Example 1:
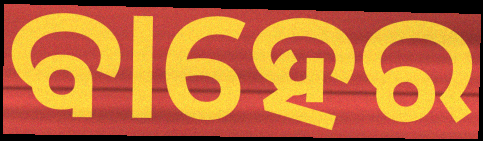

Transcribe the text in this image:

ବାହେର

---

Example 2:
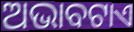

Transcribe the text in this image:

ଅଭାବଟାଏ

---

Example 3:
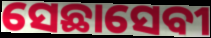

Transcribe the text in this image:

ସେଛାସେବୀ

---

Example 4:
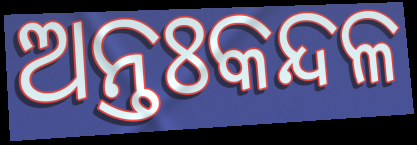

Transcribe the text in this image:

ଅନ୍ତଃକନ୍ଦଳ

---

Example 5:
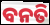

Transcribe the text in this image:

ବନତି